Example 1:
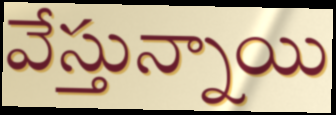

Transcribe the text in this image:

వేస్తున్నాయి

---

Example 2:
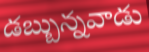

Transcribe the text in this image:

డబ్బున్నవాడు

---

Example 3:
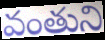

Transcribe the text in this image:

వంతుని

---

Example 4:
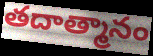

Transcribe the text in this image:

తదాత్మానం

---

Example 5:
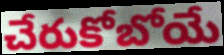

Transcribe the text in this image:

చేరుకోబోయే